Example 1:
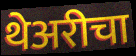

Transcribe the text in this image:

थेअरीचा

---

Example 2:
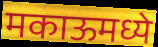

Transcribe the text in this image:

मकाऊमध्ये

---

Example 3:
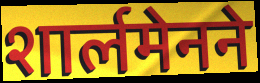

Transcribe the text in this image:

शार्लमेनने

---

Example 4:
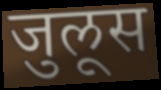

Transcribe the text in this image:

जुलूस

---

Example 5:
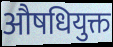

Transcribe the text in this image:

औषधियुक्त